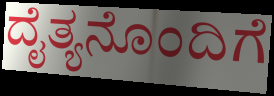
ದೈತ್ಯನೊಂದಿಗೆ